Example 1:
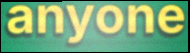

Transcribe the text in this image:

anyone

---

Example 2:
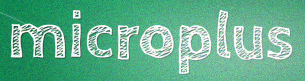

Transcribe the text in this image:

microplus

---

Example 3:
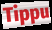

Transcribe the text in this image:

Tippu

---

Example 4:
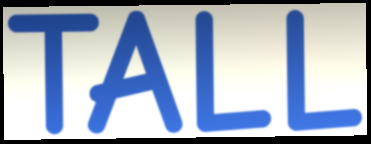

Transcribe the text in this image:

TALL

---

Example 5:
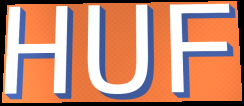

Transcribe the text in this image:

HUF